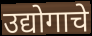
उद्योगाचे